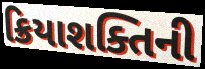
ક્રિયાશક્તિની